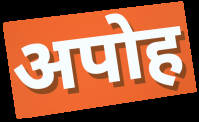
अपोह